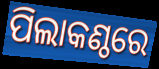
ପିଲାକଣ୍ଠରେ